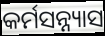
କର୍ମସନ୍ନ୍ୟାସ